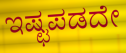
ಇಷ್ಟಪಡದೇ